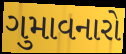
ગુમાવનારો